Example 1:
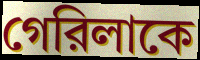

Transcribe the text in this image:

গেরিলাকে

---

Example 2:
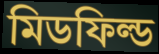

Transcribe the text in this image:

মিডফিল্ড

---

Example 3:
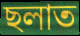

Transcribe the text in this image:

ছলাত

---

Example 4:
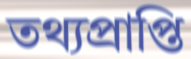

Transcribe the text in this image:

তথ্যপ্রাপ্তি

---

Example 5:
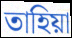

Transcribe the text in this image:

তাহিয়া